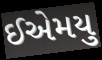
ઈએમયુ